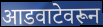
आडवाटेवरून